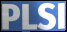
PLSI